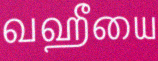
வஹீயை